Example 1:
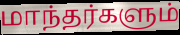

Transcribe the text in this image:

மாந்தர்களும்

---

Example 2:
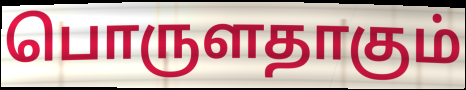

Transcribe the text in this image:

பொருளதாகும்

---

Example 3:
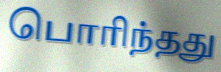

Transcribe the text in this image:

பொரிந்தது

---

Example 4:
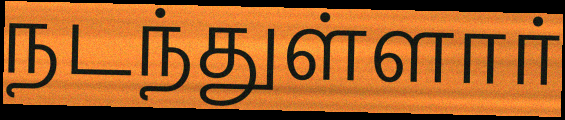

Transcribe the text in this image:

நடந்துள்ளார்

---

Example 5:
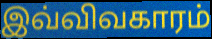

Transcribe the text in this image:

இவ்விவகாரம்